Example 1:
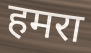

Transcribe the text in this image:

हमरा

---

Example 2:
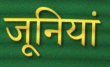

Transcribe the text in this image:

जूनियां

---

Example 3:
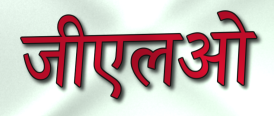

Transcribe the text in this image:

जीएलओ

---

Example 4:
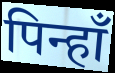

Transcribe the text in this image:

पिन्हाँ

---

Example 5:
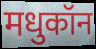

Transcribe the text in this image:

मधुकॉन